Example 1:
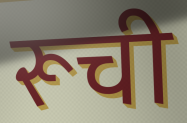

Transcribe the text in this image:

रूची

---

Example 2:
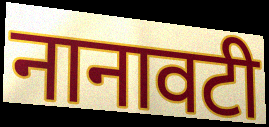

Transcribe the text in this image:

नानावटी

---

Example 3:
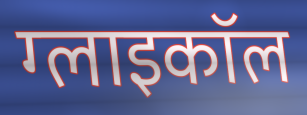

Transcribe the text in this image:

ग्लाइकॉल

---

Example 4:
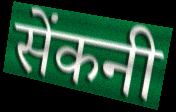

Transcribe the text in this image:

सेंकनी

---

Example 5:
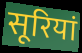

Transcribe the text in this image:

सूरियां